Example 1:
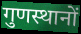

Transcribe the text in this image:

गुणस्थानों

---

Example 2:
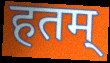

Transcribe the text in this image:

हतम्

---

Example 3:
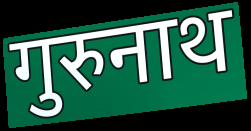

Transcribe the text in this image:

गुरुनाथ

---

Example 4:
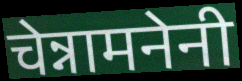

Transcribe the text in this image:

चेन्नामनेनी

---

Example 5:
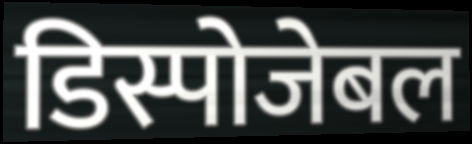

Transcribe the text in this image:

डिस्पोजेबल